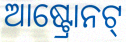
ଆଷ୍ଟ୍ରୋନଟ୍